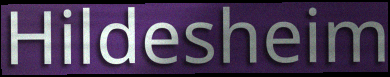
Hildesheim